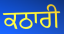
ਕਠਾਰੀ